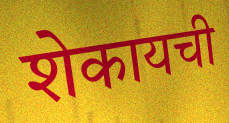
शेकायची